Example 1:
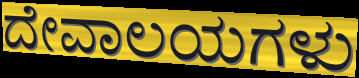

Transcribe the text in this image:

ದೇವಾಲಯಗಳು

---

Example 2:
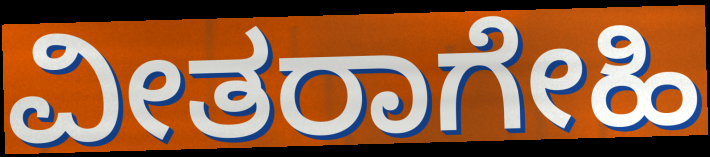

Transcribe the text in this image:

ವೀತರಾಗೇಹಿ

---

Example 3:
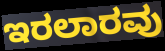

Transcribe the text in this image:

ಇರಲಾರವು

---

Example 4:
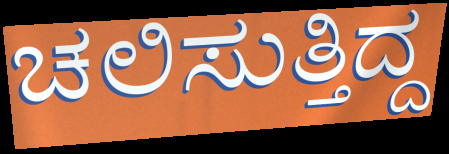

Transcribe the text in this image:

ಚಲಿಸುತ್ತಿದ್ದ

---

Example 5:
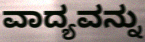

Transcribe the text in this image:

ವಾದ್ಯವನ್ನು